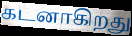
கடனாகிறது